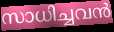
സാധിച്ചവൻ